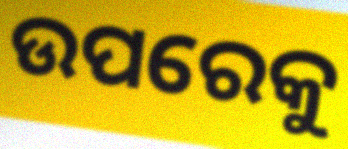
ଉପରେକୁ